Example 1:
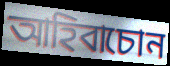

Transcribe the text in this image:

আহিবাচোন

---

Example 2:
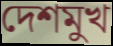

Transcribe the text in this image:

দেশমুখ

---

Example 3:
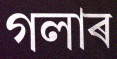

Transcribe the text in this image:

গলাৰ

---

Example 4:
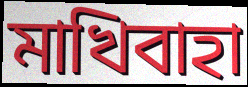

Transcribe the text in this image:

মাখিবাহা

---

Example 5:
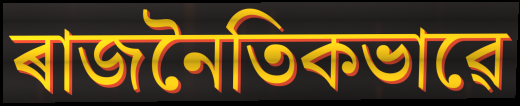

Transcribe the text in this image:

ৰাজনৈতিকভাৱে